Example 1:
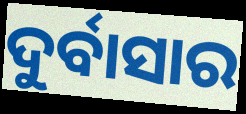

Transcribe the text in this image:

ଦୁର୍ବାସାର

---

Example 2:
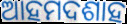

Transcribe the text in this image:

ଆହମଦଶାହ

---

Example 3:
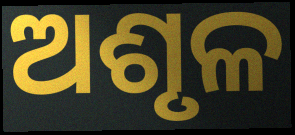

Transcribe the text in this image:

ଅଶୃଳ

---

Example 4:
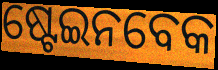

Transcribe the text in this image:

ଷ୍ଟେଇନବେକ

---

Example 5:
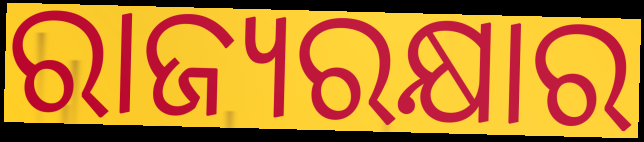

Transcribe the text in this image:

ରାଜ୍ୟରକ୍ଷାର